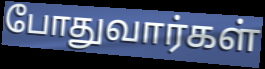
போதுவார்கள்